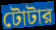
টোটার